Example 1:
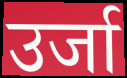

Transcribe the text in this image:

उर्जा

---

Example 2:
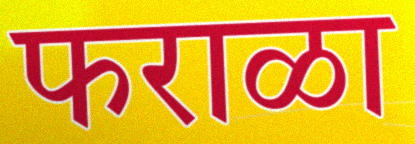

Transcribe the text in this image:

फराळा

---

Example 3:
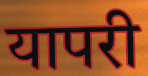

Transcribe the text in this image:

यापरी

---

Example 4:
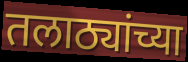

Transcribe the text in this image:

तलाठ्यांच्या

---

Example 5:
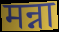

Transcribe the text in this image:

मन्ना